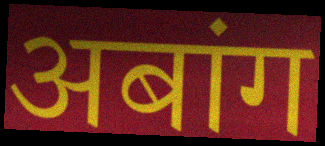
अबांग